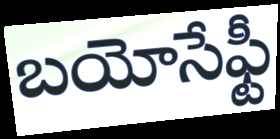
బయోసేఫ్టీ